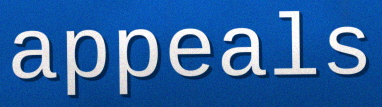
appeals